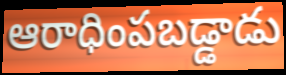
ఆరాధింపబడ్డాడు